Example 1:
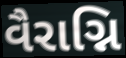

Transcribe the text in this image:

વૈરાગ્નિ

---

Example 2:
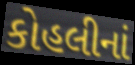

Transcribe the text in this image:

કોહલીનાં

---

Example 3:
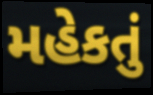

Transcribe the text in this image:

મહેકતું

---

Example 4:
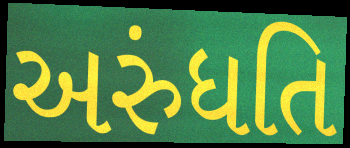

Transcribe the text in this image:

અરુંધતિ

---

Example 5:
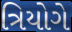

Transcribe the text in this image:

ત્રિયોગે